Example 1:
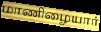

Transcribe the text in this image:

மாணிழையார்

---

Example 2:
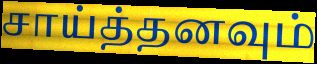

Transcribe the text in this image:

சாய்த்தனவும்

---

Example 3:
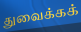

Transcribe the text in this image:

துவைக்கக்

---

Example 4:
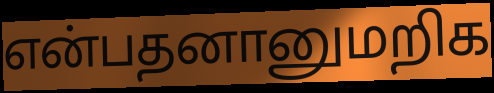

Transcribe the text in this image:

என்பதனானுமறிக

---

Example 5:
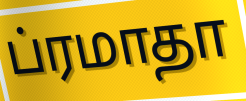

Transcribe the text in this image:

ப்ரமாதா